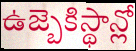
ఉజ్బెకిస్థాన్లో